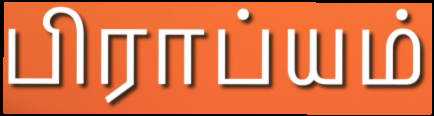
பிராப்யம்